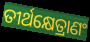
ତୀର୍ଥକ୍ଷେତ୍ରାଣଂ